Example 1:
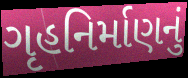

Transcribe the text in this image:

ગૃહનિર્માણનું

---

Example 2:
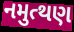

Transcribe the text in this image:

નમુત્થણ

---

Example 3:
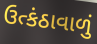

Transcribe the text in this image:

ઉત્કંઠાવાળું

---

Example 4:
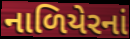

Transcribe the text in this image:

નાળિયેરનાં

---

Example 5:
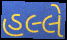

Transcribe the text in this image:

હલ્લે